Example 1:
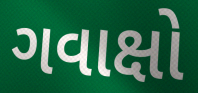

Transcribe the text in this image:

ગવાક્ષો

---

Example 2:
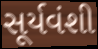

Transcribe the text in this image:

સૂર્યવંશી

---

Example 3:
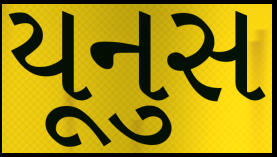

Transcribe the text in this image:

યૂનુસ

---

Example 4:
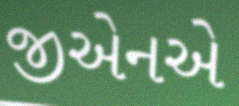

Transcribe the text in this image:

જીએનએ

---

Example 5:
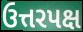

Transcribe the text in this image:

ઉત્તરપક્ષ